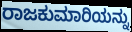
ರಾಜಕುಮಾರಿಯನ್ನು